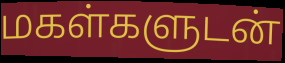
மகள்களுடன்